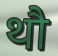
थौ